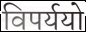
विपर्ययो